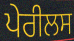
ਪੇਰੀਲਸ